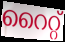
റൈറ്റ്